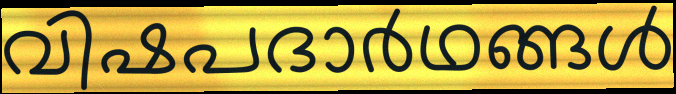
വിഷപദാർഥങ്ങൾ